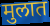
मुलात